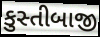
કુસ્તીબાજી